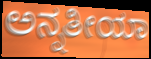
ಅನ್ನತೀಯಾ